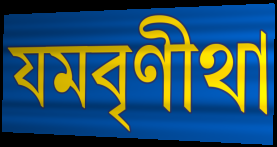
যমবৃণীথা